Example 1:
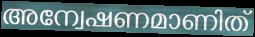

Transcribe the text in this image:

അന്വേഷണമാണിത്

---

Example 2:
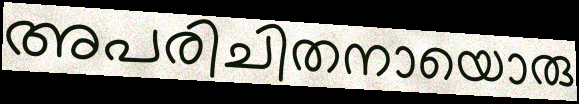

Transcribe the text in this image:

അപരിചിതനായൊരു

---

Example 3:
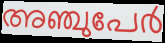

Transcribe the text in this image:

അഞ്ചുപേർ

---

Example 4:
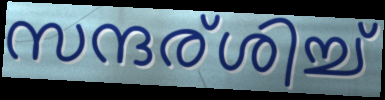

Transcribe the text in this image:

സന്ദര്ശിച്ച്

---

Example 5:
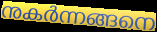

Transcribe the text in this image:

നുകർന്നങ്ങനെ